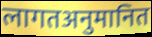
लागतअनुमानित